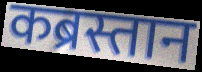
कब्रस्तान